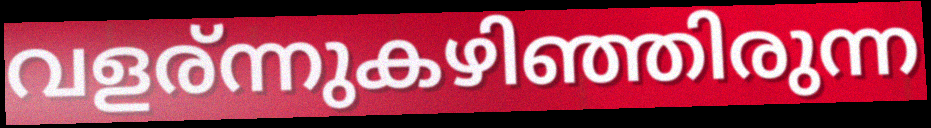
വളര്ന്നുകഴിഞ്ഞിരുന്ന